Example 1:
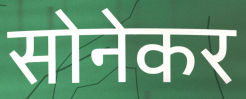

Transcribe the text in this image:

सोनेकर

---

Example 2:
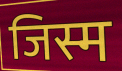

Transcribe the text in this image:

जिस्म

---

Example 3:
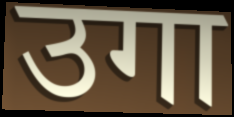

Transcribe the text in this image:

उगा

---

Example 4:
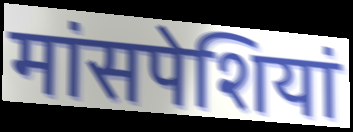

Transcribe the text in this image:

मांसपेशियां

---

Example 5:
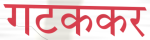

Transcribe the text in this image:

गटककर